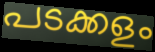
പടക്കളം